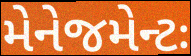
મેનેજમેન્ટઃ